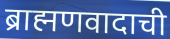
ब्राह्मणवादाची